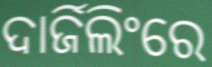
ଦାର୍ଜିଲିଂରେ